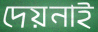
দেয়নাই